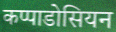
कप्पाडोसियन